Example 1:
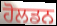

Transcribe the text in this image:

ਹੋਲਡਨ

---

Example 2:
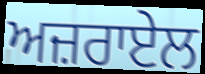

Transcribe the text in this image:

ਅਜ਼ਰਾਏਲ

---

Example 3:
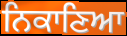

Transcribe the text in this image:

ਨਿਕਾਣਿਆ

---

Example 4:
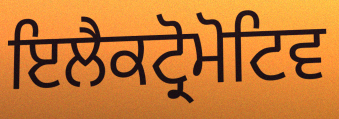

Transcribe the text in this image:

ਇਲੈਕਟ੍ਰੋਮੋਟਿਵ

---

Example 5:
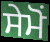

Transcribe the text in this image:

ਸੇਮੋਂ